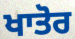
ਖਾਤੋਰ